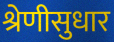
श्रेणीसुधार